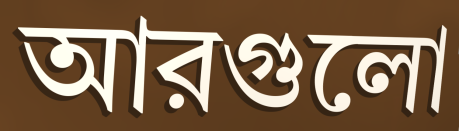
আরগুলো